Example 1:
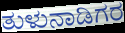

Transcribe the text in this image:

ತುಳುನಾಡಿಗರ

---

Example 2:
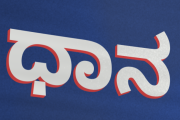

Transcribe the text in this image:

ಧಾನ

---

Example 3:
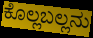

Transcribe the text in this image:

ಕೊಲ್ಲಬಲ್ಲನು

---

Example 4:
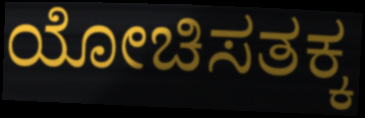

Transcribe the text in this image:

ಯೋಚಿಸತಕ್ಕ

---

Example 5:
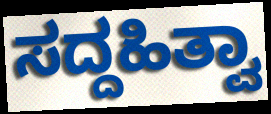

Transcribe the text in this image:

ಸದ್ದಹಿತ್ವಾ